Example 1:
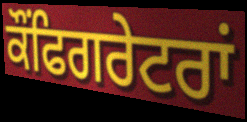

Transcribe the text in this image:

ਕੌਂਫਿਗਰੇਟਰਾਂ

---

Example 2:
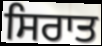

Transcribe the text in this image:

ਸਿਰਾਤ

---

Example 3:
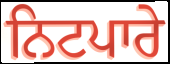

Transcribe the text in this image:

ਨਿਟਪਾਰੇ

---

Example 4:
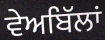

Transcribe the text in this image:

ਵੇਅਬਿੱਲਾਂ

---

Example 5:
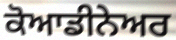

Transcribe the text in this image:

ਕੋਆਡੀਨੇਅਰ